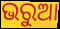
ଭରୁଆ